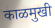
काळमुखी